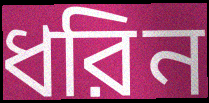
ধরিন